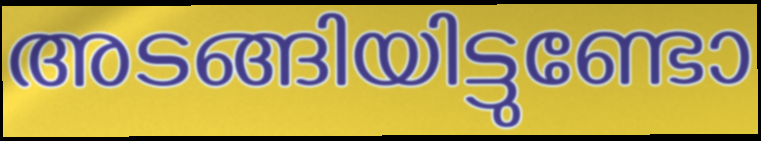
അടങ്ങിയിട്ടുണ്ടോ